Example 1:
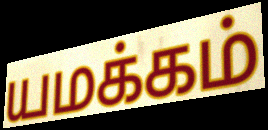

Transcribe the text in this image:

யமக்கம்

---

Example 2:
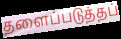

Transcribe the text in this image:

தளைப்படுத்தப்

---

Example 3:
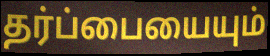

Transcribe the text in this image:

தர்ப்பையையும்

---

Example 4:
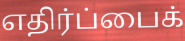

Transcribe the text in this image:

எதிர்ப்பைக்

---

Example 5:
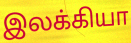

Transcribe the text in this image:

இலக்கியா